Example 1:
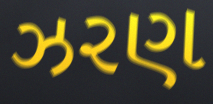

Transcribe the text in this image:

ઝરણ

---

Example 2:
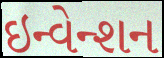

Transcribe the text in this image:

ઇન્વેન્શન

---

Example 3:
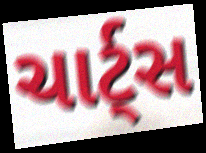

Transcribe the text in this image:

ચાર્ટ્સ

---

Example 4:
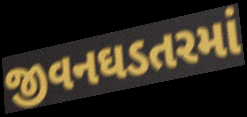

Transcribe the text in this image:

જીવનઘડતરમાં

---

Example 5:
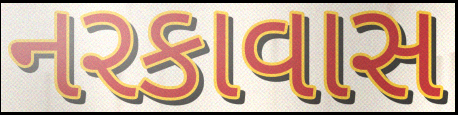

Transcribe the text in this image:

નરકાવાસ